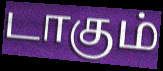
டாகும்